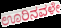
ಊರಿನವಳೇ